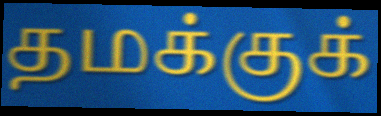
தமக்குக்